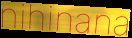
nihinana